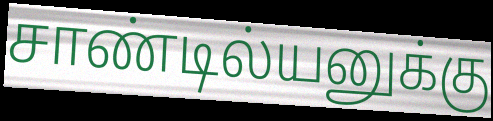
சாண்டில்யனுக்கு